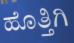
ಹೊತ್ತಿಗಿ